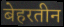
बेहरतीन